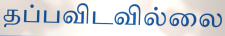
தப்பவிடவில்லை